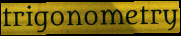
trigonometry